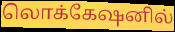
லொக்கேஷனில்